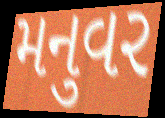
મનુવર